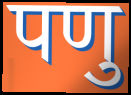
पणु